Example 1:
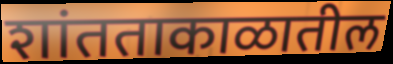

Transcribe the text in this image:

शांतताकाळातील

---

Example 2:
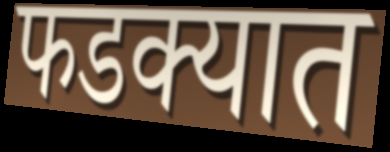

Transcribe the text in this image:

फडक्यात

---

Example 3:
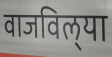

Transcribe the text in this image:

वाजविल्या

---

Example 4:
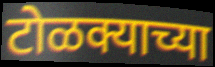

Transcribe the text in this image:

टोळक्याच्या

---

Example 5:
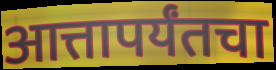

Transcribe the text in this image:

आत्तापर्यंतचा